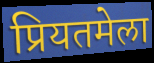
प्रियतमेला